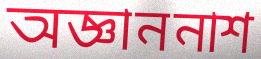
অজ্ঞাননাশ